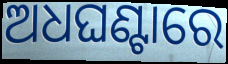
ଅଧଘଣ୍ଟାରେ